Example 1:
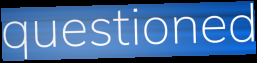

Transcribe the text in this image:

questioned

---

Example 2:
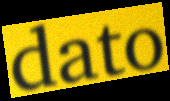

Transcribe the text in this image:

dato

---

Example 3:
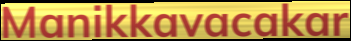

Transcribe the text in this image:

Manikkavacakar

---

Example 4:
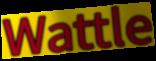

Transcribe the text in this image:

Wattle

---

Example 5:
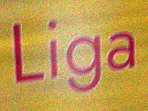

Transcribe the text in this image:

Liga